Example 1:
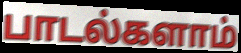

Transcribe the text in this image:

பாடல்களாம்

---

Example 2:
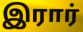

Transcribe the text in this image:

இரார்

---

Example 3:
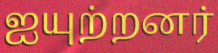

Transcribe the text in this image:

ஐயுற்றனர்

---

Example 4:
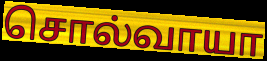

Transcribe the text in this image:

சொல்வாயா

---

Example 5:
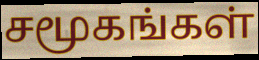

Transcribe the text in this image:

சமூகங்கள்